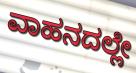
ವಾಹನದಲ್ಲೇ